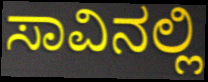
ಸಾವಿನಲ್ಲಿ